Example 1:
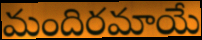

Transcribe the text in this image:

మందిరమాయే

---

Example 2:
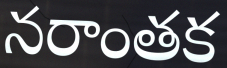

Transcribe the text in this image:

నరాంతక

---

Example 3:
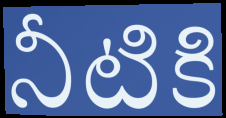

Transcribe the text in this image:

నీటికి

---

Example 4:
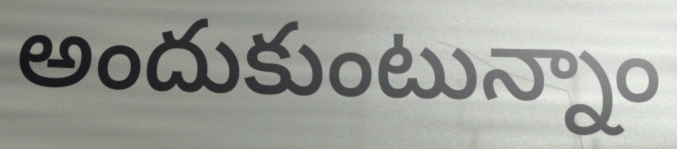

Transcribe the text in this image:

అందుకుంటున్నాం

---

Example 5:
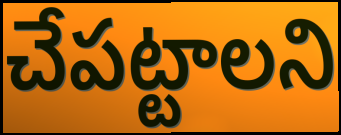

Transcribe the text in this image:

చేపట్టాలని